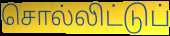
சொல்லிட்டுப்